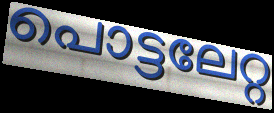
പൊട്ടലേറ്റ